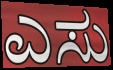
ಎಸು